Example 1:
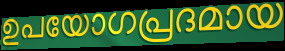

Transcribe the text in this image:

ഉപയോഗപ്രദമായ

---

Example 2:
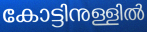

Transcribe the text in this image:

കോട്ടിനുള്ളിൽ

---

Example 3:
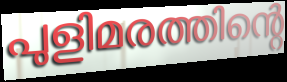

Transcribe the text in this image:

പുളിമരത്തിന്റെ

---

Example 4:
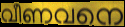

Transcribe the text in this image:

വീണവനെ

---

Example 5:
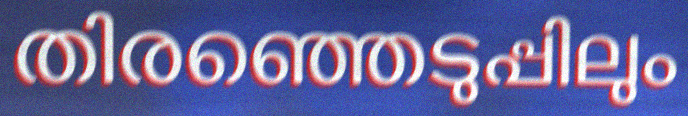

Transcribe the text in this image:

തിരഞ്ഞെടുപ്പിലും